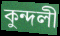
কুন্দলী